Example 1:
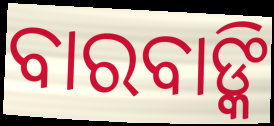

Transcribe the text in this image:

ବାରବାଙ୍କି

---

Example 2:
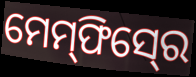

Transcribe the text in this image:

ମେମ୍‍ଫିସ୍‍ରେ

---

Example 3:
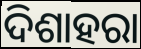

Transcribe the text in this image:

ଦିଶାହରା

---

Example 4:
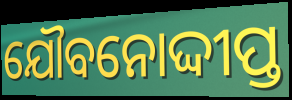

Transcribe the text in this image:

ଯୌବନୋଦ୍ଦୀପ୍ତ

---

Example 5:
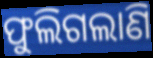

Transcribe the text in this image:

ଫୁଲିଗଲାଣି